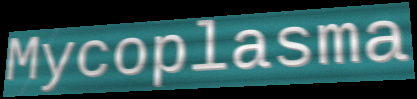
Mycoplasma